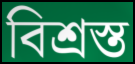
বিশ্রস্ত